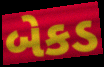
બેકડ